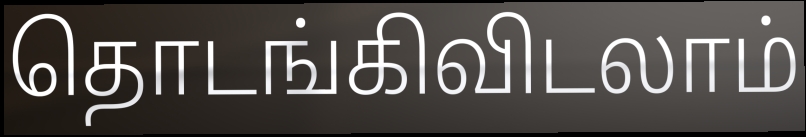
தொடங்கிவிடலாம்